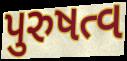
પુરુષત્વ